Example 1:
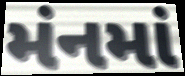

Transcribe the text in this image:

મંનમાં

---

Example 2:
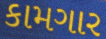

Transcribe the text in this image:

કામગાર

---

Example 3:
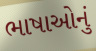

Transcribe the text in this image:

ભાષાઓનું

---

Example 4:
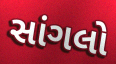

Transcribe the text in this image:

સાંગલો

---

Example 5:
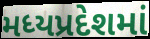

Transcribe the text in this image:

મધ્યપ્રદેશમાં